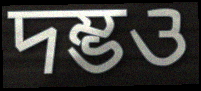
দম্ভও